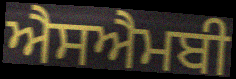
ਐਸਐਮਬੀ